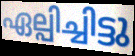
ഏല്പിച്ചിട്ടു